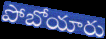
పోబోయారు